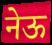
नेऊ